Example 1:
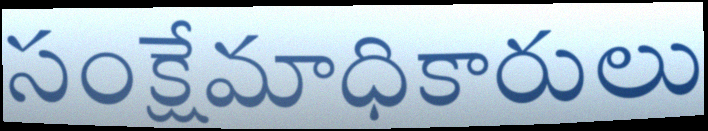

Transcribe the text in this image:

సంక్షేమాధికారులు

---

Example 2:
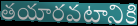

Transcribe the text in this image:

తయారవటానికి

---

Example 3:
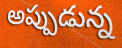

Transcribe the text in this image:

అప్పుడున్న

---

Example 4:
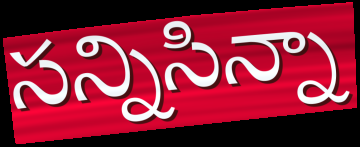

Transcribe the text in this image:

సన్నిసిన్నా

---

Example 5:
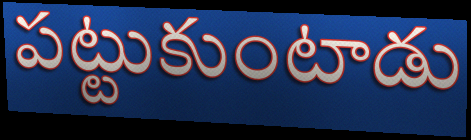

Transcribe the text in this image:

పట్టుకుంటాడు